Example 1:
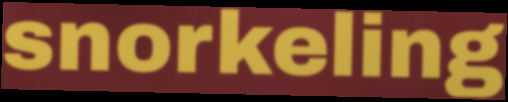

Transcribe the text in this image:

snorkeling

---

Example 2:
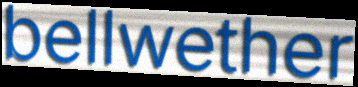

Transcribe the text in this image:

bellwether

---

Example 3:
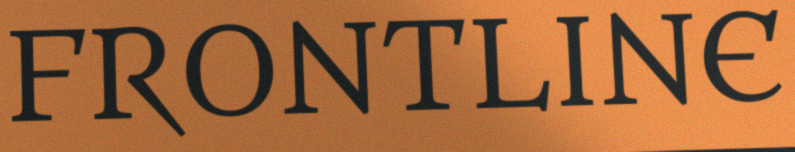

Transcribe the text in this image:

FRONTLINE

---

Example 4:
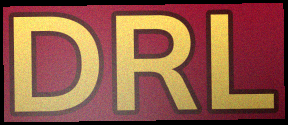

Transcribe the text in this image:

DRL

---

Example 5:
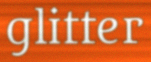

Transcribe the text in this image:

glitter